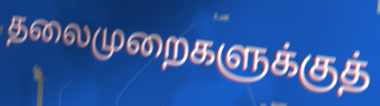
தலைமுறைகளுக்குத்